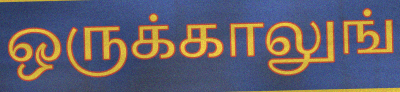
ஒருக்காலுங்